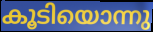
കൂടിയൊന്നു